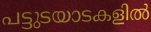
പട്ടുടയാടകളിൽ